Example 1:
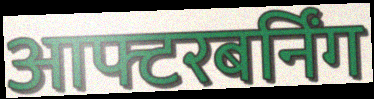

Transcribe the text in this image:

आफ्टरबर्निंग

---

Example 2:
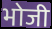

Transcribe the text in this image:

भोजी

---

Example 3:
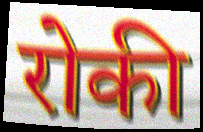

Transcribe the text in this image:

रोकी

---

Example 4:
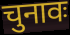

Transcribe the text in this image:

चुनावः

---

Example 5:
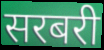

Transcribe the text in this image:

सरबरी